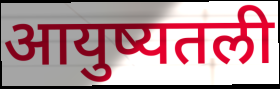
आयुष्यतली